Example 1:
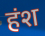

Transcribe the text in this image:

हंश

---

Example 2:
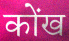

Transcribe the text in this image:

कोंख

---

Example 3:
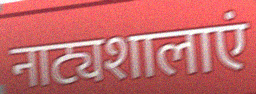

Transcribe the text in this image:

नाट्यशालाएं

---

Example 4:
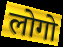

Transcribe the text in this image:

लोगो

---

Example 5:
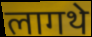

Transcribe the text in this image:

लागथे